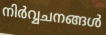
നിർവ്വചനങ്ങൾ